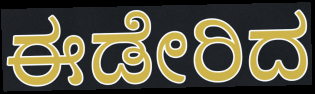
ಈಡೇರಿದ